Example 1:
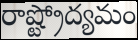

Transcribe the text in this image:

రాష్ట్రోద్యమం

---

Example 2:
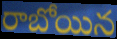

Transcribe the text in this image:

రాబోయిన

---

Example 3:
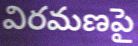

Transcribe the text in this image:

విరమణపై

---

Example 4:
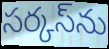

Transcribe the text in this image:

సర్కస్‌ను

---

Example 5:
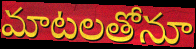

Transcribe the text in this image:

మాటలతోనూ